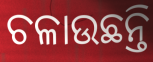
ଚଳାଉଛନ୍ତି